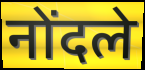
नोंदले